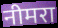
नीमरा